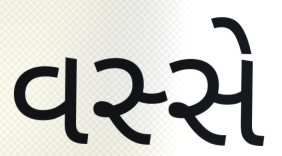
વસ્સે